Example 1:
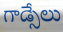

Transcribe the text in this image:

గాడ్సేలు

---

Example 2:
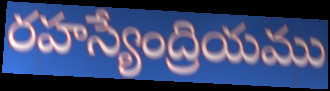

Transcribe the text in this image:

రహస్యేంద్రియము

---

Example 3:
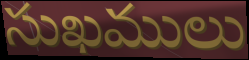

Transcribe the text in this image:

సుఖములు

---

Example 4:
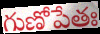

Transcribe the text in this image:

గుణోపేతః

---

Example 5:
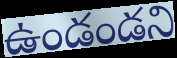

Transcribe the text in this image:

ఉండండని